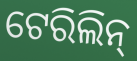
ଟେରିଲିନ୍